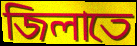
জিলাতে